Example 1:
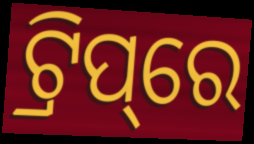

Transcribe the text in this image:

ଟ୍ରିପ୍‌ରେ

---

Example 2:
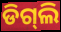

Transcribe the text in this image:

ଡିଗ୍‌ଲି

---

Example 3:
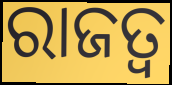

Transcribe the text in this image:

ରାଜତ୍ଵ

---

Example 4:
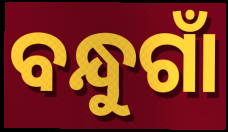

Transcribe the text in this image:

ବନ୍ଧୁଗାଁ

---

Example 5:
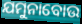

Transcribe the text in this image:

ଯମୁନାବୋଉ